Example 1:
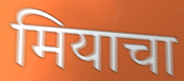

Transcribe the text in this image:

मियाचा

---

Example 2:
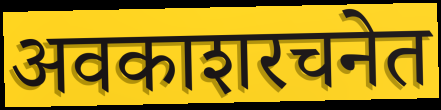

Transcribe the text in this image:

अवकाशरचनेत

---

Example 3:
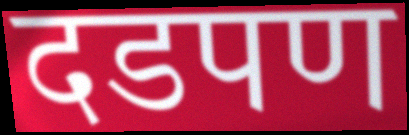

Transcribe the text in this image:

दडपण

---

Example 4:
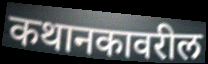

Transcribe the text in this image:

कथानकावरील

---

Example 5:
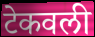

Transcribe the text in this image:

टेकवली